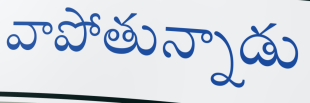
వాపోతున్నాడు